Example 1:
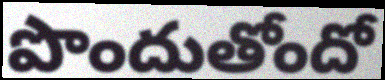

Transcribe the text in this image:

పొందుతోందో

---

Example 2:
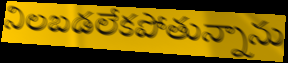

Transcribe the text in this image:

నిలబడలేకపోతున్నాను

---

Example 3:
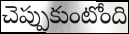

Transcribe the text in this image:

చెప్పుకుంటోంది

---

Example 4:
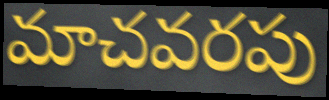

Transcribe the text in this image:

మాచవరపు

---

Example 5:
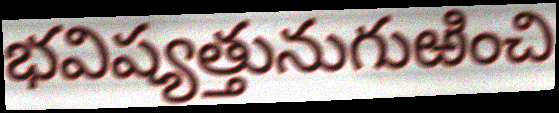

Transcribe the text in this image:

భవిష్యత్తునుగుఱించి